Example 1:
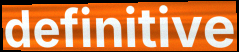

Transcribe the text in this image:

definitive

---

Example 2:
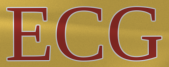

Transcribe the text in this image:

ECG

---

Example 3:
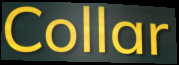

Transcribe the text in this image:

Collar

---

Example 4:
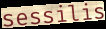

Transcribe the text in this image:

sessilis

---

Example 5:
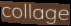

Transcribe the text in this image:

collage